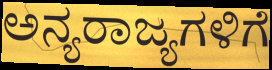
ಅನ್ಯರಾಜ್ಯಗಳಿಗೆ